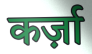
कर्ज़ा